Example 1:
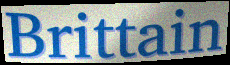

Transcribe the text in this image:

Brittain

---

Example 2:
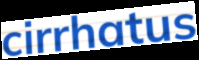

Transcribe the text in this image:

cirrhatus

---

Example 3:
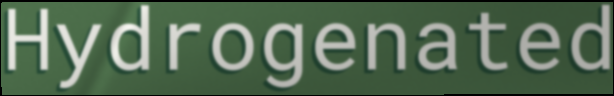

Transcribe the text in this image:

Hydrogenated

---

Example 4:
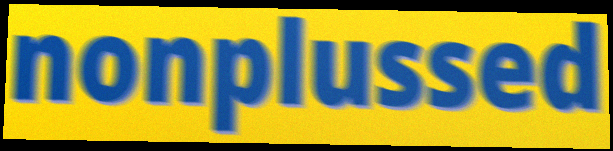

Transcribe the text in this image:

nonplussed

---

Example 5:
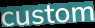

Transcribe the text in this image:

custom